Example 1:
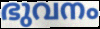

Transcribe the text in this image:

ഭുവനം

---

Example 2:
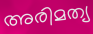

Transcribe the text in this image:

അരിമത്യ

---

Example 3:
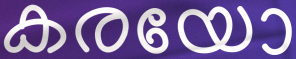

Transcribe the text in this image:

കരയോ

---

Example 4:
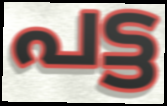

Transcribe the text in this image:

പട്ട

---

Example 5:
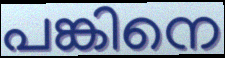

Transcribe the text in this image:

പങ്കിനെ